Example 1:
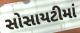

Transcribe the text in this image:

સોસાયટીમાં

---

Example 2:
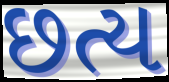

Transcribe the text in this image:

છત્ય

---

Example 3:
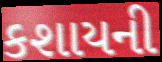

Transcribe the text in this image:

કશાયની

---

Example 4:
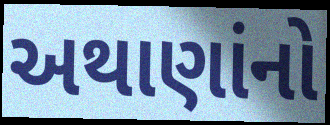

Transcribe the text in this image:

અથાણાંનો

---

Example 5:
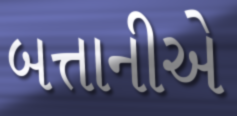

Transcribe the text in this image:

બત્તાનીએ